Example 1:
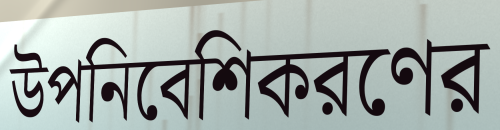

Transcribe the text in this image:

উপনিবেশিকরণের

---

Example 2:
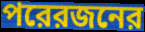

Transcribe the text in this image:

পরেরজনের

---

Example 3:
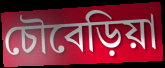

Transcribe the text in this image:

চৌবেড়িয়া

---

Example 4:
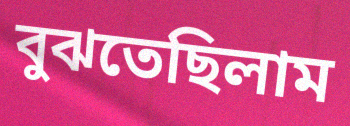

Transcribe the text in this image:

বুঝতেছিলাম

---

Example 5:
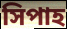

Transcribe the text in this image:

সিপাহ